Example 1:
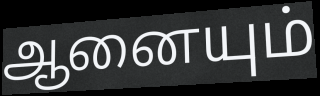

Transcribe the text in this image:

ஆனையும்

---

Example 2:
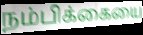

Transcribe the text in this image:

நம்பிக்கையை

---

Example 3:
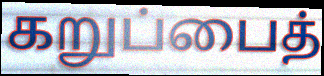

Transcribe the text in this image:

கறுப்பைத்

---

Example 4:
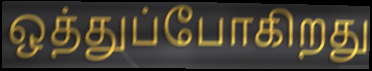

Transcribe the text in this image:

ஒத்துப்போகிறது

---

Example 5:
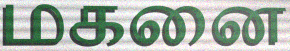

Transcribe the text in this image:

மகனை